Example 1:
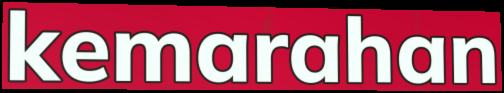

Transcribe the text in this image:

kemarahan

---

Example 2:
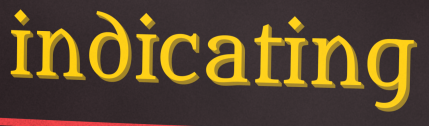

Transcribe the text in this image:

indicating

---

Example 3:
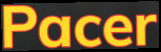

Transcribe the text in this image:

Pacer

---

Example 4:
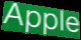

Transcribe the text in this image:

Apple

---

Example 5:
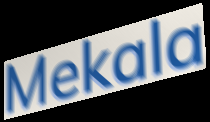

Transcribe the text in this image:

Mekala